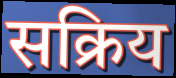
सक्रिय